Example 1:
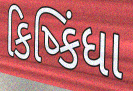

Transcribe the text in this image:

કિષ્કિંધા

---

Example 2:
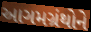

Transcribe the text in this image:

આગમગ્રંથોને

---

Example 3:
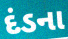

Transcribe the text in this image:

દંડના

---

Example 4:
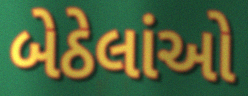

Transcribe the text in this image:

બેઠેલાંઓ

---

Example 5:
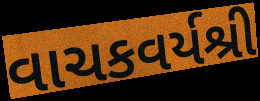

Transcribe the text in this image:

વાચકવર્યશ્રી